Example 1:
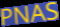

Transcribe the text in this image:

PNAS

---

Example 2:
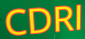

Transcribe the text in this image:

CDRI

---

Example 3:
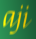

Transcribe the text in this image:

aji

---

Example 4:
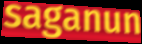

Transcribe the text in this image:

saganun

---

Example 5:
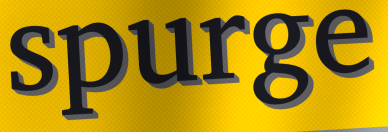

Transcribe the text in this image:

spurge